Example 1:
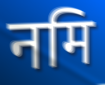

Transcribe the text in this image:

नमि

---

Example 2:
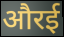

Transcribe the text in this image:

औरई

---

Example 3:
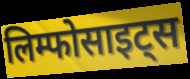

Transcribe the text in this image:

लिम्फोसाइट्स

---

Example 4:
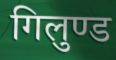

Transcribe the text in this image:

गिलुण्ड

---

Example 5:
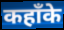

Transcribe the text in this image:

कहाँके